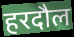
हरदौल